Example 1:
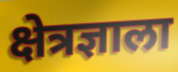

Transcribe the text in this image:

क्षेत्रज्ञाला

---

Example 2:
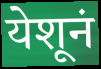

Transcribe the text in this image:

येशूनं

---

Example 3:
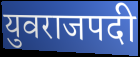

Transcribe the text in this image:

युवराजपदी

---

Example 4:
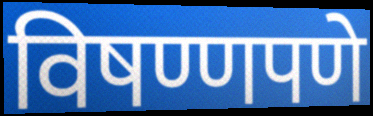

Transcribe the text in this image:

विषण्णपणे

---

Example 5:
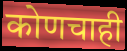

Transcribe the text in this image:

कोणचाही